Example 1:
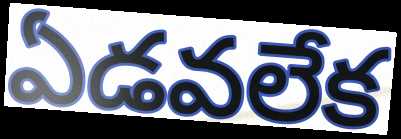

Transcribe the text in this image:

ఏడవలేక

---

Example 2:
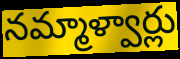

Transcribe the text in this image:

నమ్మాళ్వార్లు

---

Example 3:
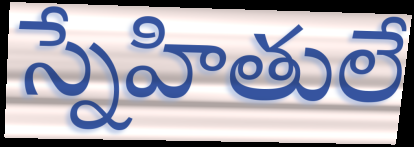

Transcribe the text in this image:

స్నేహితులే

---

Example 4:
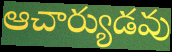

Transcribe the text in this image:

ఆచార్యుడవు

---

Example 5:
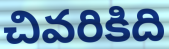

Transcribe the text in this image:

చివరికిది